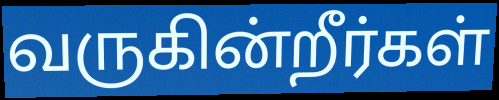
வருகின்றீர்கள்